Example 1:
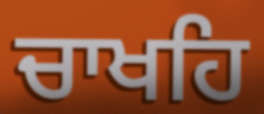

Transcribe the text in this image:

ਚਾਖਹਿ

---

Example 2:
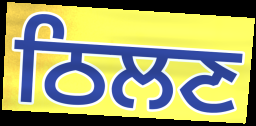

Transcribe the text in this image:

ਠਿਲਣ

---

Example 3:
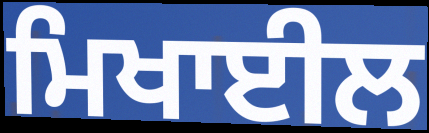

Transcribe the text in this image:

ਮਿਖਾਈਲ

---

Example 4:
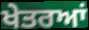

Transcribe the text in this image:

ਖੇਤਰਆਂ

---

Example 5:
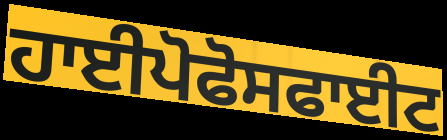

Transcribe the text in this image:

ਹਾਈਪੋਫੋਸਫਾਈਟ